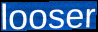
looser